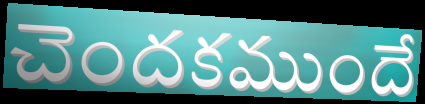
చెందకముందే